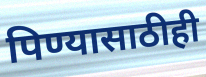
पिण्यासाठीही